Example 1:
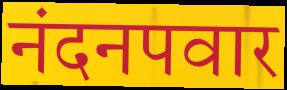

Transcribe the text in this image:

नंदनपवार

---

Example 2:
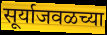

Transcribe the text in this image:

सूर्याजवळच्या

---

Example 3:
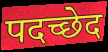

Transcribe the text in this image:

पदच्छेद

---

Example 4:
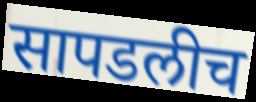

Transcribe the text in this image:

सापडलीच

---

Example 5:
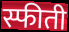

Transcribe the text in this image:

स्फीती